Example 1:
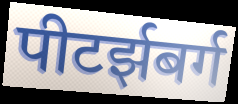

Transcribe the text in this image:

पीटर्झबर्ग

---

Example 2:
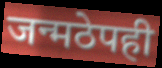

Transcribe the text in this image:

जन्मठेपही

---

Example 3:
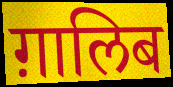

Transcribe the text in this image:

ग़ालिब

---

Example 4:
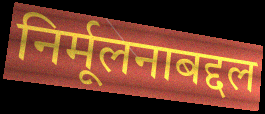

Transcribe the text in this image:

निर्मूलनाबद्दल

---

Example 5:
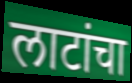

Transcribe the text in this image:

लाटांचा